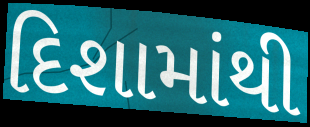
દિશામાંથી